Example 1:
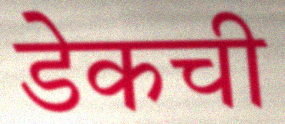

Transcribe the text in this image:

डेकची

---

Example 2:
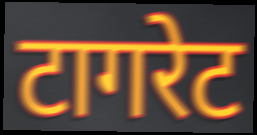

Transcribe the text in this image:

टागरेट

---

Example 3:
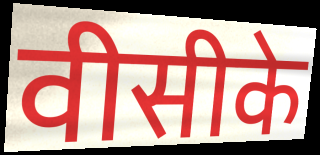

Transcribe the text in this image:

वीसीके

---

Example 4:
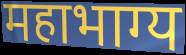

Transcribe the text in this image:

महाभाग्य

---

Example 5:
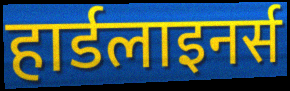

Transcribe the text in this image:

हार्डलाइनर्स